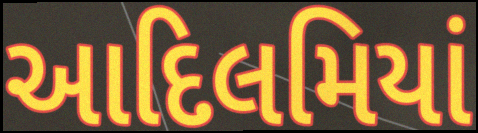
આદિલમિયાં